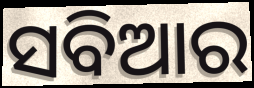
ସବିଆର